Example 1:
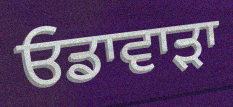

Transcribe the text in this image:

ਓਡਾਵਾੜਾ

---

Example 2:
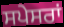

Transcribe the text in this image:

ਸਪੇਸਰਾਂ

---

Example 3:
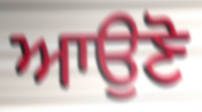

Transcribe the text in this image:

ਆਉਣੋ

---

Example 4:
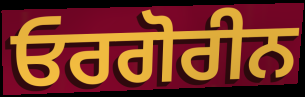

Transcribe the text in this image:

ਓਰਗੋਰੀਨ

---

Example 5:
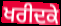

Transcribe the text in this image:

ਖਰੀਦਕੇ